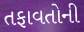
તફાવતોની